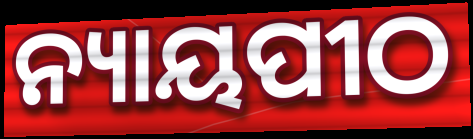
ନ୍ୟାୟପୀଠ